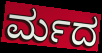
ರ್ಮದ